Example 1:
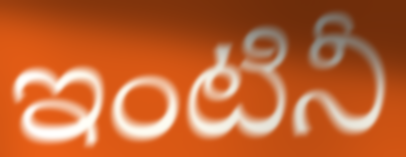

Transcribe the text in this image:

ఇంటినీ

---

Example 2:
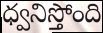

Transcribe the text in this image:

ధ్వనిస్తోంది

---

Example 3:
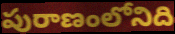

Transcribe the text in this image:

పురాణంలోనిది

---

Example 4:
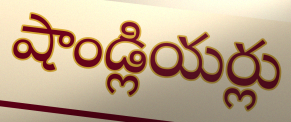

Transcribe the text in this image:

షాండ్లియర్లు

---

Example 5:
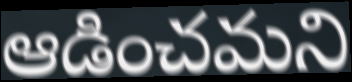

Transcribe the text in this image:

ఆడించమని